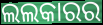
ଲଲକାରର